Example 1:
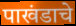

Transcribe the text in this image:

पाखंडाचे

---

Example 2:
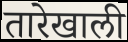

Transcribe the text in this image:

तारेखाली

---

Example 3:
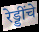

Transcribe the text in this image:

रेड्डींचे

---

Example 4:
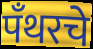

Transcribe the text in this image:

पँथरचे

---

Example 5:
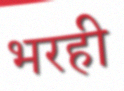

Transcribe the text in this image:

भरही